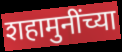
शहामुनींच्या